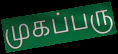
முகப்பரு